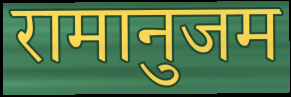
रामानुजम